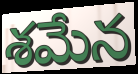
శమేన